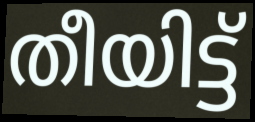
തീയിട്ട്